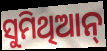
ସୁମିଥିଆନ୍